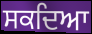
ਸਕਦਿਆ